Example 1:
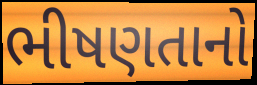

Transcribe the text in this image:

ભીષણતાનો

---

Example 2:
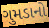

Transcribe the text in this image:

ગુમડાનો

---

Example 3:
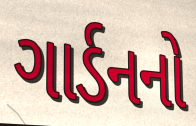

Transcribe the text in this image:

ગાર્ડનનો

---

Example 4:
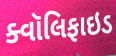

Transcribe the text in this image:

ક્વૉલિફાઇડ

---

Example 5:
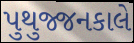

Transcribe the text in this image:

પુથુજ્જનકાલે